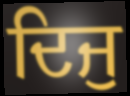
ਦਿਜੁ